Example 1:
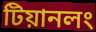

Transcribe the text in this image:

টিয়ানলং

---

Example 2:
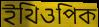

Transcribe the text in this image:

ইথিওপিক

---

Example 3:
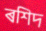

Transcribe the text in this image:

ৰশিদ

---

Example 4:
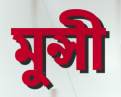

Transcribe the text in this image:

মুন্সী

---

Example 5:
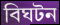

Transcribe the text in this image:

বিঘটন